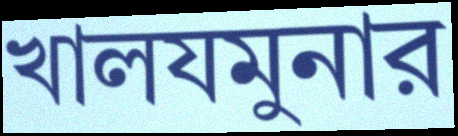
খালযমুনার